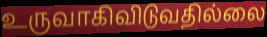
உருவாகிவிடுவதில்லை